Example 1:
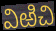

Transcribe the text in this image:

విఱిచి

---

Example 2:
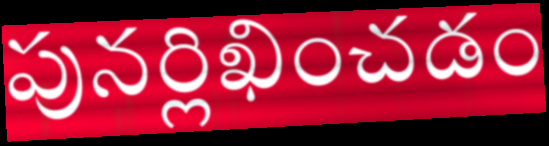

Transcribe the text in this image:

పునర్లిఖించడం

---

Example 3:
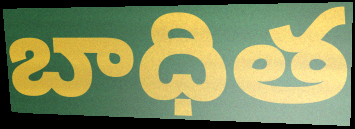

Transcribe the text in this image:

బాధిత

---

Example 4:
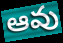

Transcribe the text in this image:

ఆవు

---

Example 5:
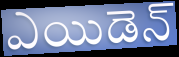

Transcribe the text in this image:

ఎయిడెన్